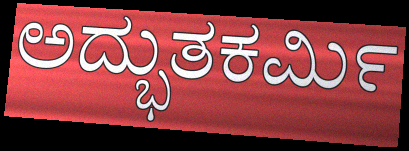
ಅದ್ಭುತಕರ್ಮಿ